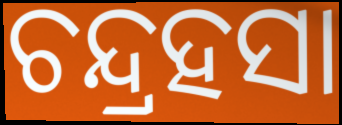
ଚନ୍ଦ୍ରହସା